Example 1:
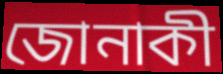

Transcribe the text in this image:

জোনাকী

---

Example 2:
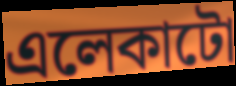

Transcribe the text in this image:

এলেকাটো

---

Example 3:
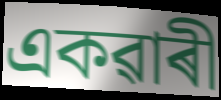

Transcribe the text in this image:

একৱাৰী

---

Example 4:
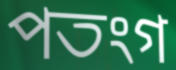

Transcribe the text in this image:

পতংগ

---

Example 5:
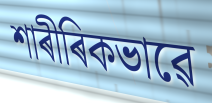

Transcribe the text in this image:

শাৰীৰিকভাৱে